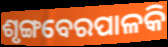
ଶୃଙ୍ଗବେରପାଳକି